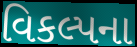
વિકલ્પના